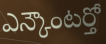
ఎన్కౌంటర్తో